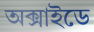
অক্সাইডে